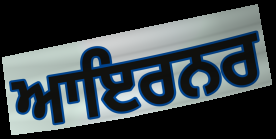
ਆਇਰਨਰ